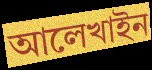
আলেখাইন